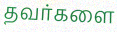
தவர்களை